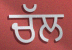
ਚੱਲ